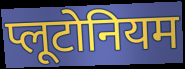
प्लूटोनियम